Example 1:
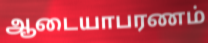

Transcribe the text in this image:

ஆடையாபரணம்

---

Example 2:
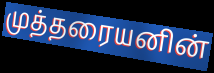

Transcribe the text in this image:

முத்தரையனின்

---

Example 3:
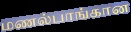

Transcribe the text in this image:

மணல்பாங்கான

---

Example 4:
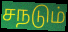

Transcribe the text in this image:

சநடும்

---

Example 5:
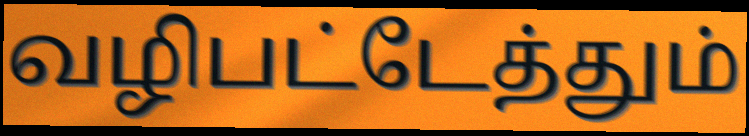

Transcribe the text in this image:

வழிபட்டேத்தும்